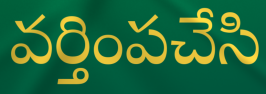
వర్తింపచేసి